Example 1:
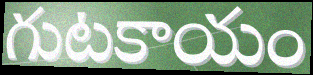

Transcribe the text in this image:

గుటకాయం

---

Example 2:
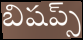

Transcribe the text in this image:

బిషప్స్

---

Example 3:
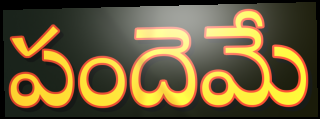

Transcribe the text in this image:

పందెమే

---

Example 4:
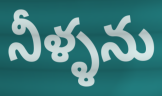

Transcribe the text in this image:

నీళ్ళను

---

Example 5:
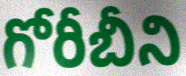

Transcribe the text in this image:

గోరీబీని